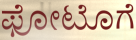
ಫೋಟೊಗೆ